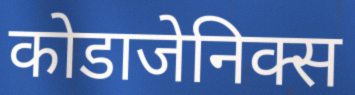
कोडाजेनिक्स